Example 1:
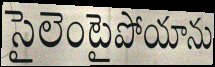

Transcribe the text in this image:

సైలెంటైపోయాను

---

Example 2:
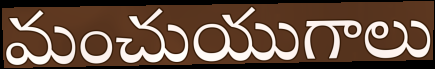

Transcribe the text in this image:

మంచుయుగాలు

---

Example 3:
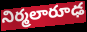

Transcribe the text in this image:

నిర్మలారూఢ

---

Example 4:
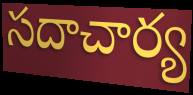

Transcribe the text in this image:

సదాచార్య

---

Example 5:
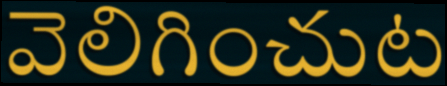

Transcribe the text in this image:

వెలిగించుట